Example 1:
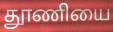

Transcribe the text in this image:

தூணியை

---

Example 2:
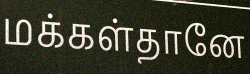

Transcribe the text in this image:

மக்கள்தானே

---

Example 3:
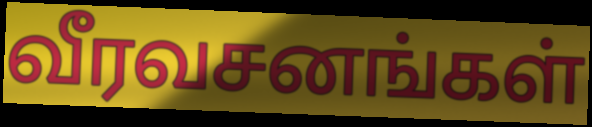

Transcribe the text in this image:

வீரவசனங்கள்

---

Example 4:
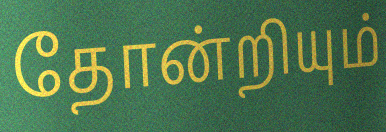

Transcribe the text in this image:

தோன்றியும்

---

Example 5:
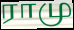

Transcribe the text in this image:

ராமு